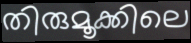
തിരുമൂക്കിലെ